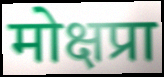
मोक्षप्रा